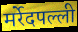
मर्रेदपल्ली